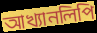
আখ্যানলিপি